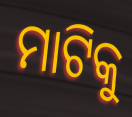
ମାଟିକୁ